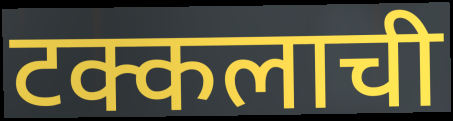
टक्कलाची